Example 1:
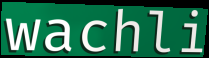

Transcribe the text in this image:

wachli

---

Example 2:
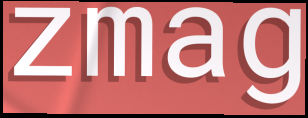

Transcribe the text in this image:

zmag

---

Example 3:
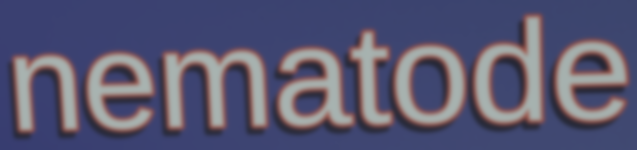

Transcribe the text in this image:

nematode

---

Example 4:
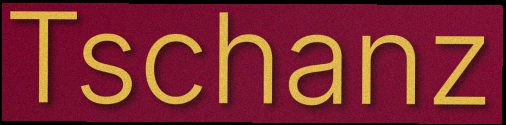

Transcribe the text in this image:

Tschanz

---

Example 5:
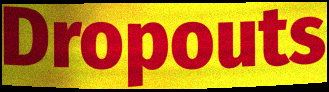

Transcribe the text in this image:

Dropouts